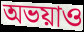
অভয়াও